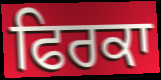
ਫਿਰਕਾ